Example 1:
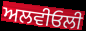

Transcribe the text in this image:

ਅਲਵੀਓਲੀ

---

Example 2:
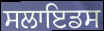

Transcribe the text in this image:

ਸਲਾਇਡਸ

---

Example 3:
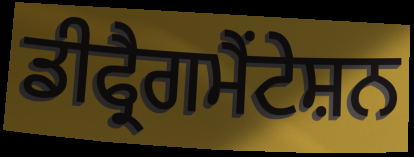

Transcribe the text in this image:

ਡੀਫ੍ਰੈਗਮੈਂਟੇਸ਼ਨ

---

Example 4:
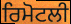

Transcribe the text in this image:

ਰਿਮੋਟਲੀ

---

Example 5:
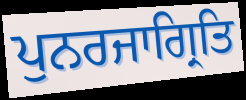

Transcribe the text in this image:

ਪੁਨਰਜਾਗ੍ਰਿਤਿ